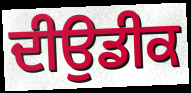
ਦੀਉਡੀਕ